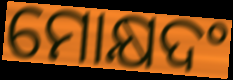
ମୋକ୍ଷଦଂ